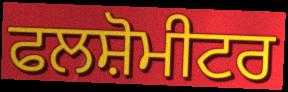
ਫਲਸ਼ੋਮੀਟਰ